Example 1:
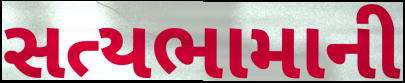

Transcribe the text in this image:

સત્યભામાની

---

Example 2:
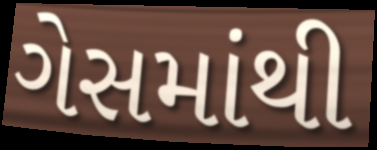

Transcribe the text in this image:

ગેસમાંથી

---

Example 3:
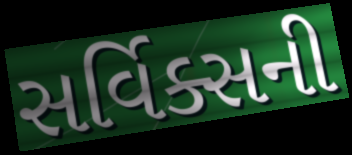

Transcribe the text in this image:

સર્વિક્સની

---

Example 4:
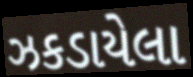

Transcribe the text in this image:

ઝકડાયેલા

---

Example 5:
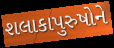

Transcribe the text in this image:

શલાકાપુરુષોને